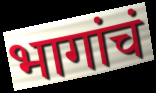
भागांचं